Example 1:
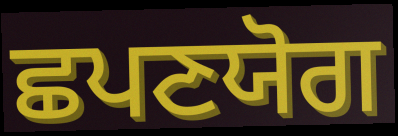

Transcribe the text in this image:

ਛਪਣਯੋਗ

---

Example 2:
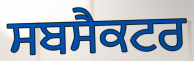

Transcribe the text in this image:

ਸਬਸੈਕਟਰ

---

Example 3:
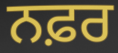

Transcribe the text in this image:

ਨਫ਼ਰ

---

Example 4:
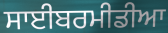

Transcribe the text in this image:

ਸਾਈਬਰਮੀਡੀਆ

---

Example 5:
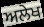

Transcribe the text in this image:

ਅਲੇਖ